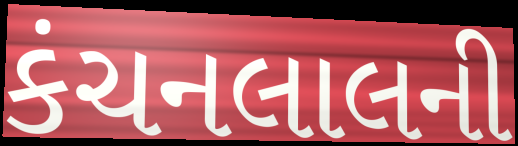
કંચનલાલની